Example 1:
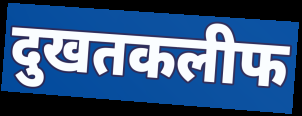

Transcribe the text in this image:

दुखतकलीफ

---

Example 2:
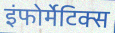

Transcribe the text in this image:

इंफोर्मेटिक्स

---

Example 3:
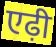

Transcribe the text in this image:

एढ़ी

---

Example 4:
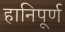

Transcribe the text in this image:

हानिपूर्ण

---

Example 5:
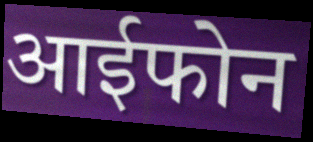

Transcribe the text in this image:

आईफोन